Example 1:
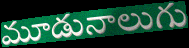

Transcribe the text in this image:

మూడునాలుగు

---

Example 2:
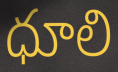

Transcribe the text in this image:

ధూలి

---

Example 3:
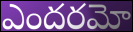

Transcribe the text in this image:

ఎందరమో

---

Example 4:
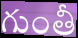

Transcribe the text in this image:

గుంతీ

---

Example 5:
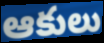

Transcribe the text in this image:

ఆకులు